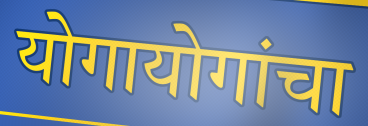
योगायोगांचा